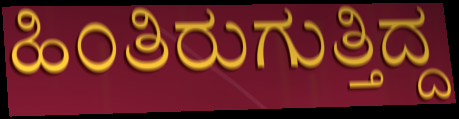
ಹಿಂತಿರುಗುತ್ತಿದ್ದ